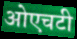
ओएचटी